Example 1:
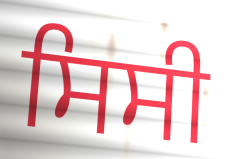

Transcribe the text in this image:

ਸਿਸੀ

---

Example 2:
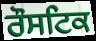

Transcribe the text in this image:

ਰੌਸਟਿਕ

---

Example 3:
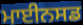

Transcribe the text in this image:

ਮਾਈਨਸਡ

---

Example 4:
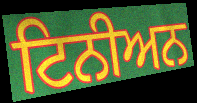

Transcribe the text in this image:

ਟਿਨੀਅਨ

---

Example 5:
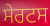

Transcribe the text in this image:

ਸੇਰਟਸ